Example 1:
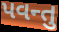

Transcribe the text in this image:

પવન્તુ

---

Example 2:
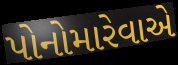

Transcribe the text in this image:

પોનોમારેવાએ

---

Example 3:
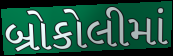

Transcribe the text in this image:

બ્રોકોલીમાં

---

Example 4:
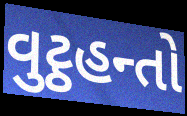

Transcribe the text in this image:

વુટ્ઠહન્તો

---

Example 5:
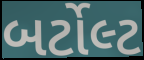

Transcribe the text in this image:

બર્ટોલ્ટ